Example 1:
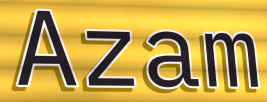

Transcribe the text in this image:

Azam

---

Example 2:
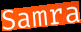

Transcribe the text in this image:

Samra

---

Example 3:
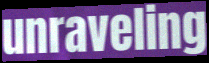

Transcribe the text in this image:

unraveling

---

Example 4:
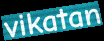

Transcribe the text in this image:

vikatan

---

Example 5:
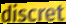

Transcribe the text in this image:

discret